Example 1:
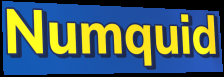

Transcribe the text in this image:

Numquid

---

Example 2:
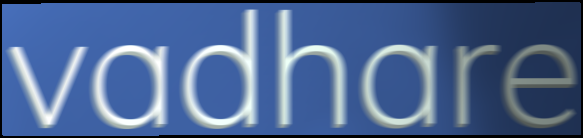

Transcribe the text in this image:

vadhare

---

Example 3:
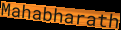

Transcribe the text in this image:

Mahabharath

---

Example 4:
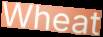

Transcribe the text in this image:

Wheat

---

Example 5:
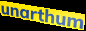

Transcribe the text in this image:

unarthum